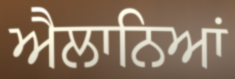
ਐਲਾਨਿਆਂ